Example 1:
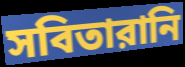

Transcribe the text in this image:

সবিতারানি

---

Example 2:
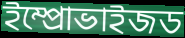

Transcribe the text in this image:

ইম্প্রোভাইজড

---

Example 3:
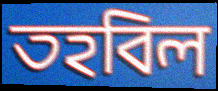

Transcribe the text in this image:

তহবিল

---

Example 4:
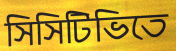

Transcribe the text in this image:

সিসিটিভিতে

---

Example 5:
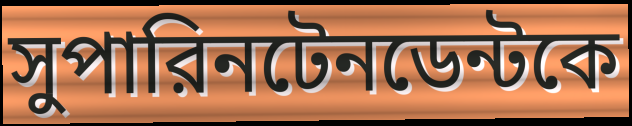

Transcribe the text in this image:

সুপারিনটেনডেন্টকে